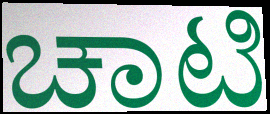
ಚಾಟಿ